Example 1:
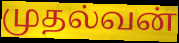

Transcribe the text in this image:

முதல்வன்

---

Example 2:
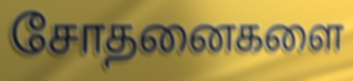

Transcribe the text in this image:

சோதனைகளை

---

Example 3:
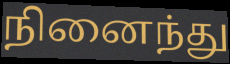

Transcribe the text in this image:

நினைந்து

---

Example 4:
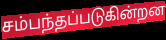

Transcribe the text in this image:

சம்பந்தப்படுகின்றன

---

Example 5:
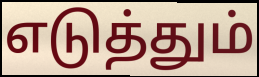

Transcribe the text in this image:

எடுத்தும்